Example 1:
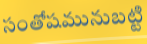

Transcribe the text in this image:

సంతోషమునుబట్టి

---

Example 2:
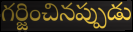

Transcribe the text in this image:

గర్జించినప్పుడు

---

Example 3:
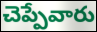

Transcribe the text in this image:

చెప్పేవారు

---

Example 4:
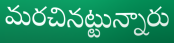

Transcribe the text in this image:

మరచినట్టున్నారు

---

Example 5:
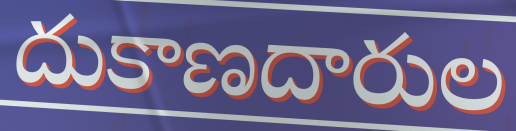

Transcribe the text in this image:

దుకాణదారుల